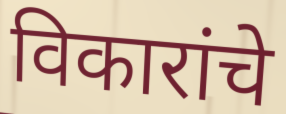
विकारांचे